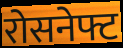
रोसनेफ्ट